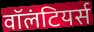
वॉलंटियर्स